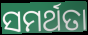
ସମର୍ଥତା